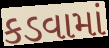
કડવામાં